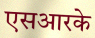
एसआरके